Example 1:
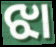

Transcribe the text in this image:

ଝା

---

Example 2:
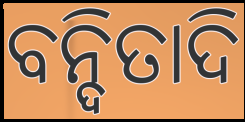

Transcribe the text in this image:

ବନ୍ଦିତାଦି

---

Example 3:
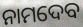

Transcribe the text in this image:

ନାମଦେବ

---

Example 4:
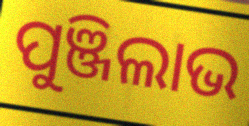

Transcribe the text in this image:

ପୁଞ୍ଜିଲାଭ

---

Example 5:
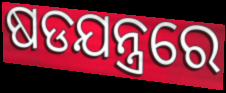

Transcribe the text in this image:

ଷଡଯନ୍ତ୍ରରେ